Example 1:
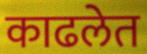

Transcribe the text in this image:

काढलेत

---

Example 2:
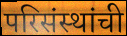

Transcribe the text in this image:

परिसंस्थांची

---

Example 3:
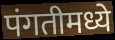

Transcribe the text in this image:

पंगतीमध्ये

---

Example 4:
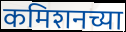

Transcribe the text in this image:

कमिशनच्या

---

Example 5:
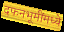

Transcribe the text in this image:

दफनभूमींमध्ये